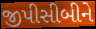
જીપીસીબીને